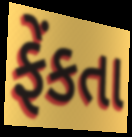
ફેંકતા